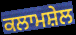
ਕਲਾਮਸ਼ੇਲ